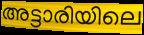
അട്ടാരിയിലെ